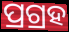
ପ୍ରଗ୍ରହ